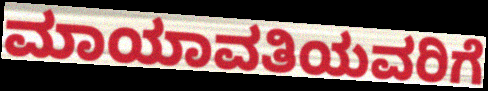
ಮಾಯಾವತಿಯವರಿಗೆ